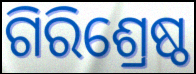
ଗିରିଶ୍ରେଷ୍ଠ